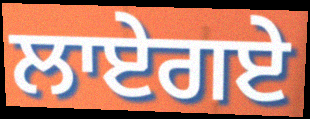
ਲਾਏਗਏ